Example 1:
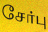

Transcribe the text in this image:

சேர்பு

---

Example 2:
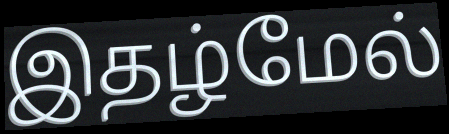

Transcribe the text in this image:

இதழ்மேல்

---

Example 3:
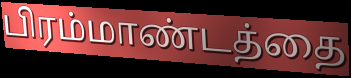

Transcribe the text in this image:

பிரம்மாண்டத்தை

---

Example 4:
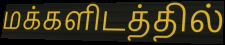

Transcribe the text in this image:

மக்களிடத்தில்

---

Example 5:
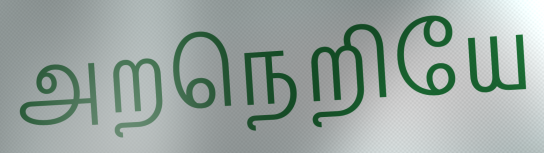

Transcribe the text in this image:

அறநெறியே